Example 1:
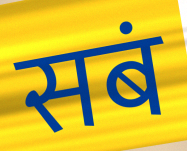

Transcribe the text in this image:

सबं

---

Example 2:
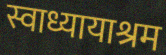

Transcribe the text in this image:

स्वाध्यायाश्रम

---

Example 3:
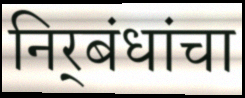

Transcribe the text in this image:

निर्बंधांचा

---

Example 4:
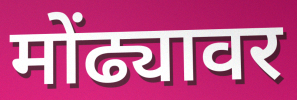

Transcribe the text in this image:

मोंढ्यावर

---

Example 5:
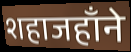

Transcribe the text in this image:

शहाजहाँने